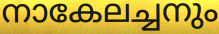
നാകേലച്ചനും